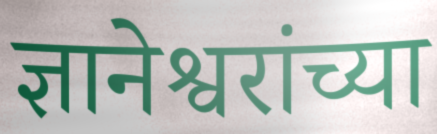
ज्ञानेश्वरांच्या